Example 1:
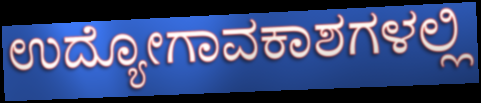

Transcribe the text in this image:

ಉದ್ಯೋಗಾವಕಾಶಗಳಲ್ಲಿ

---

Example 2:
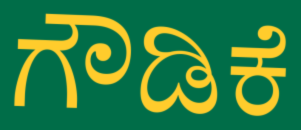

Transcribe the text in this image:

ಗೌಡಿಕೆ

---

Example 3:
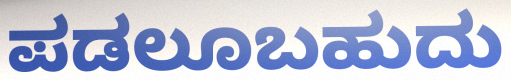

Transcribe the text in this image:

ಪಡಲೂಬಹುದು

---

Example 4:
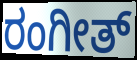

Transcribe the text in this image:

ರಂಗೀತ್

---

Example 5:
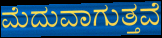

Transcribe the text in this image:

ಮೆದುವಾಗುತ್ತವೆ